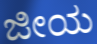
ಜೀಯ